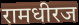
रामधीरज